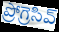
ప్రోగ్రెసివ్